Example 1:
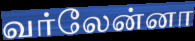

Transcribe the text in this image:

வர்லேன்னா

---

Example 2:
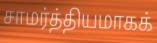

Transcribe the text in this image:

சாமர்த்தியமாகக்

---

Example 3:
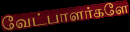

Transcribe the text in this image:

வேட்பாளர்களே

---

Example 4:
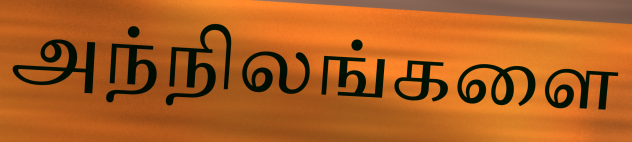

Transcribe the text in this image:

அந்நிலங்களை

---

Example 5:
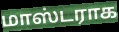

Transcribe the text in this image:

மாஸ்டராக